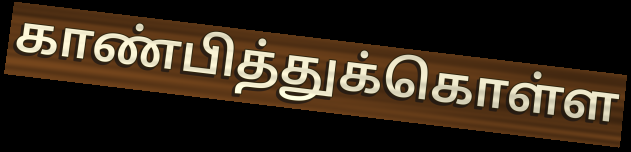
காண்பித்துக்கொள்ள